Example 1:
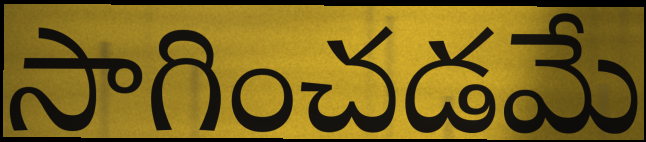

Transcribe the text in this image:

సాగించడమే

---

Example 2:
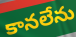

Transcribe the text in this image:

కానలేను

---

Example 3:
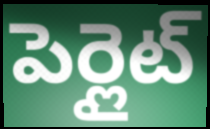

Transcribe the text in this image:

పెర్లైట్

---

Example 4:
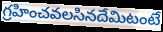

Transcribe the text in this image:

గ్రహించవలసినదేమిటంటే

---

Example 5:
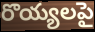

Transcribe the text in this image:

రొయ్యలపై